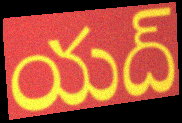
యద్